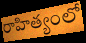
రాహిత్యంలో